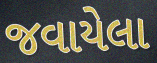
જવાયેલા